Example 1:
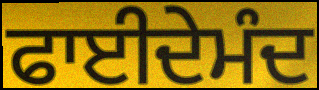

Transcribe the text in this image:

ਫਾਈਦੇਮੰਦ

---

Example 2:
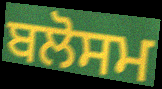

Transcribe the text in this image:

ਬਲੋਸਮ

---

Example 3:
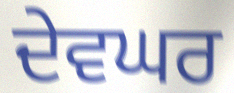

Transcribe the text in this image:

ਦੇਵਘਰ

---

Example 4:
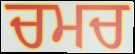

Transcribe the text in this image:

ਚਮਚ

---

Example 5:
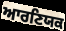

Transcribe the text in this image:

ਆਰਣਿਯਕ